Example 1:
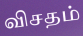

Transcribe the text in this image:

விசதம்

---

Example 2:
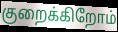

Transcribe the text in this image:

குறைக்கிறோம்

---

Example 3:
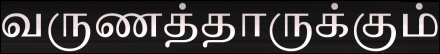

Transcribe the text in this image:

வருணத்தாருக்கும்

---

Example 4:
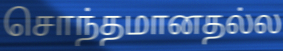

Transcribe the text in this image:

சொந்தமானதல்ல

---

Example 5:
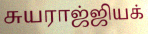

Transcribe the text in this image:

சுயராஜ்ஜியக்